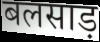
बलसाड़